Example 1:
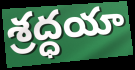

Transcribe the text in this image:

శ్రద్ధయా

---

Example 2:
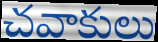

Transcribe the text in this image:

చవాకులు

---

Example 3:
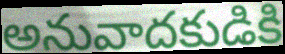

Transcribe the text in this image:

అనువాదకుడికి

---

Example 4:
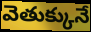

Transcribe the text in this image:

వెతుక్కునే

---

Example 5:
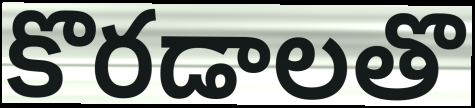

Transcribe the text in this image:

కొరడాలతొ